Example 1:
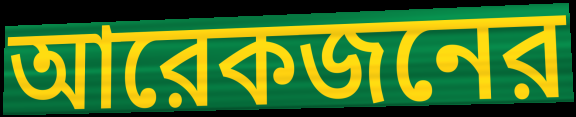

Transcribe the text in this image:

আরেকজনের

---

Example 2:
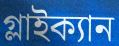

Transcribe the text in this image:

গ্লাইক্যান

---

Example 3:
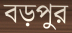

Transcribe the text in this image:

বড়পুর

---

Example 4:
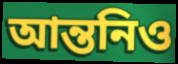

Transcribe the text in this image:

আন্তনিও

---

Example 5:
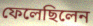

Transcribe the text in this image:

ফেলেছিলেন